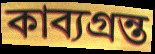
কাব্যগ্রন্ত